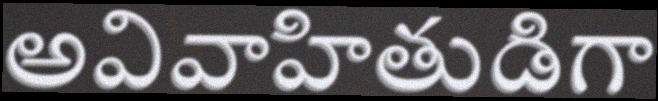
అవివాహితుడిగా